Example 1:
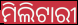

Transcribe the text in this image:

ମିଲିଟାରୀ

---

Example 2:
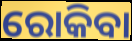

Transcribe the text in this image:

ରୋକିବା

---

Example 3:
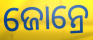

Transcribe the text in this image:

ଜୋନ୍ରେ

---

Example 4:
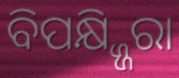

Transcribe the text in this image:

ବିପକ୍ଷ୍ଜ୍ଜିରା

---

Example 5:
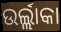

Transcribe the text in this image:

ଉର୍ଲ୍ଲାକା